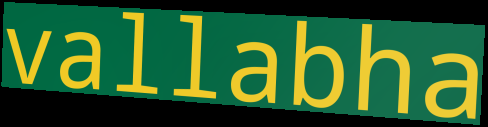
vallabha